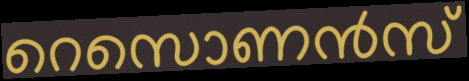
റെസൊണൻസ്